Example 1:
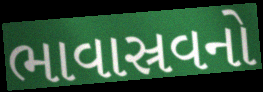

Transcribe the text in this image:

ભાવાસ્રવનો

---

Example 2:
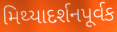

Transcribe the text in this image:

મિથ્યાદર્શનપૂર્વક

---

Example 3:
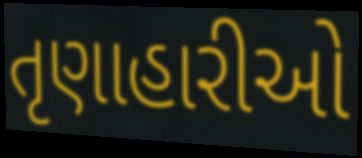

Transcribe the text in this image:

તૃણાહારીઓ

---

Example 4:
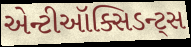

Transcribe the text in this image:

એન્ટીઑક્સિડન્ટ્સ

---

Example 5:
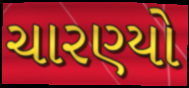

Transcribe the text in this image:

ચારણ્યો